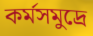
কর্মসমুদ্রে